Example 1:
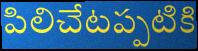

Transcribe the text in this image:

పిలిచేటప్పటికి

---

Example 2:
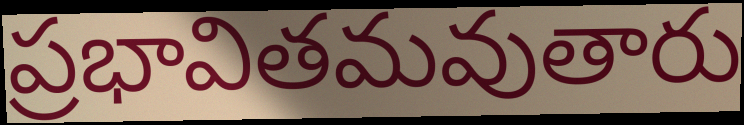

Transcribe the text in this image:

ప్రభావితమవుతారు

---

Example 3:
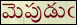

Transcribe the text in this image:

మెపుడుఁ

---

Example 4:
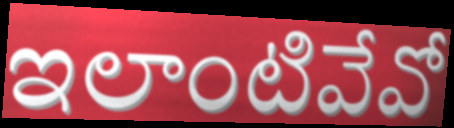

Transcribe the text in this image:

ఇలాంటివేవో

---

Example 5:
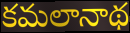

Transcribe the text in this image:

కమలానాథ